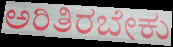
ಅರಿತಿರಬೇಕು